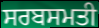
ਸਰਬਸਮਤੀ